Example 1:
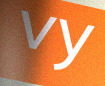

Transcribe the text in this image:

vy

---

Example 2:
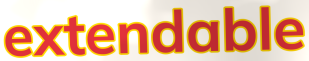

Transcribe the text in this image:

extendable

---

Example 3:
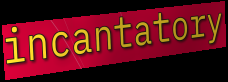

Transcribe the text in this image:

incantatory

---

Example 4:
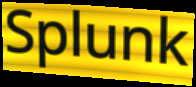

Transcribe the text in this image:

Splunk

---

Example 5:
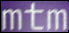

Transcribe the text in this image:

mtm